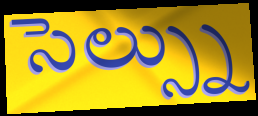
సెల్స్ను